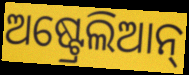
ଅଷ୍ଟ୍ରେଲିଆନ୍